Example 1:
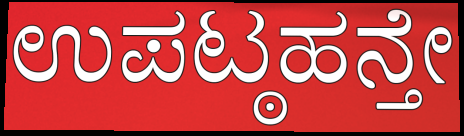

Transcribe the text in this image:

ಉಪಟ್ಠಹನ್ತೇ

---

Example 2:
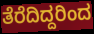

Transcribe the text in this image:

ತೆರೆದಿದ್ದರಿಂದ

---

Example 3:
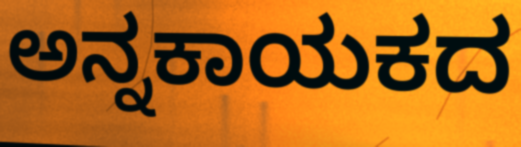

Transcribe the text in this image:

ಅನ್ನಕಾಯಕದ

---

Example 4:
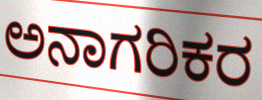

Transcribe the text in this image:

ಅನಾಗರಿಕರ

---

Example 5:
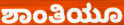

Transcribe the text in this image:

ಶಾಂತಿಯೂ